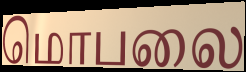
மொபலை